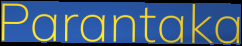
Parantaka